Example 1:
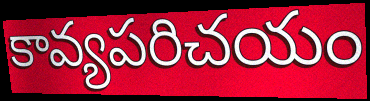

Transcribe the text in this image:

కావ్యపరిచయం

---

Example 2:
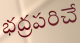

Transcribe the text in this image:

భద్రపరిచే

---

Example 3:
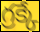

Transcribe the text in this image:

గ్రక్కే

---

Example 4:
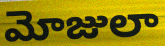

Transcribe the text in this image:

మోజులా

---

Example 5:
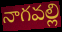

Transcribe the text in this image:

నాగవల్లి